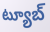
ట్యూబ్